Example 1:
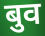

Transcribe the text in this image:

बुव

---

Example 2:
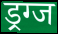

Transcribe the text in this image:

ड्रग्ज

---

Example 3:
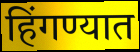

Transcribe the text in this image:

हिंगण्यात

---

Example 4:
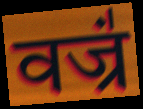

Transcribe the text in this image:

वज्रं॑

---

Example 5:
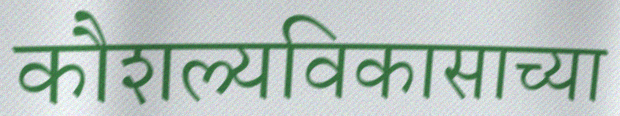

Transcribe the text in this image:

कौशल्यविकासाच्या